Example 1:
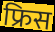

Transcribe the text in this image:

फ्रिस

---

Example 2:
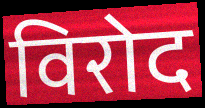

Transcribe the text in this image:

विरोद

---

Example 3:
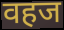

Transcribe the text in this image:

वहज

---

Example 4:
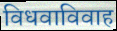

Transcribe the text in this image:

विधवाविवाह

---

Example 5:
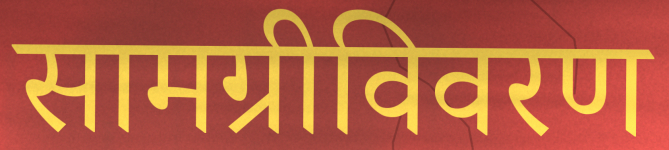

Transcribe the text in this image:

सामग्रीविवरण